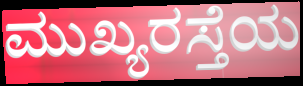
ಮುಖ್ಯರಸ್ತೆಯ